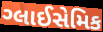
ગ્લાઈસેમિક